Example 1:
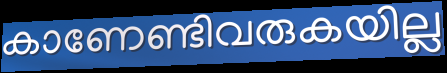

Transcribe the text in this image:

കാണേണ്ടിവരുകയില്ല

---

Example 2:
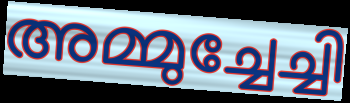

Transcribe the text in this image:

അമ്മുച്ചേച്ചി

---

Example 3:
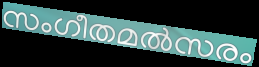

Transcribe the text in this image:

സംഗീതമൽസരം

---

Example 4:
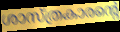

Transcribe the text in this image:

ശാസ്ത്രകാരന്റെ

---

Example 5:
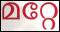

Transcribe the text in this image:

മറ്റേ